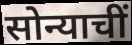
सोन्याचीं